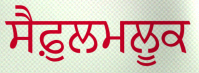
ਸੈਫ਼ੁਲਮਲੂਕ